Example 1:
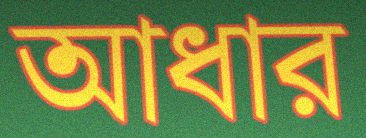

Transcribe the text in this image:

আধার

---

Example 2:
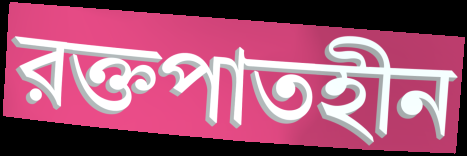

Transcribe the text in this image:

রক্তপাতহীন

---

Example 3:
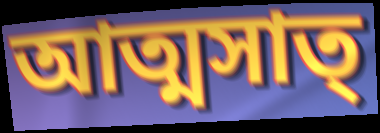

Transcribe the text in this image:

আত্মসাত্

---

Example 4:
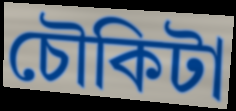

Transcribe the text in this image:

চৌকিটা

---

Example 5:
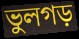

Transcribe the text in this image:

ভুলগড়